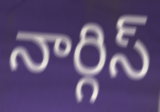
నార్గిస్